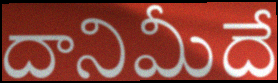
దానిమీదే